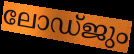
ലോഡ്ജും